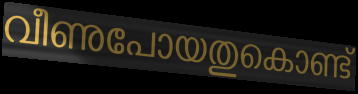
വീണുപോയതുകൊണ്ട്